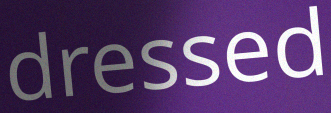
dressed